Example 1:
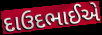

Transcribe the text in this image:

દાઉદભાઈએ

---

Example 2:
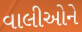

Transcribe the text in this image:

વાલીઓને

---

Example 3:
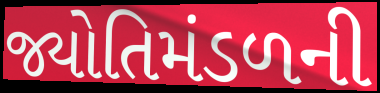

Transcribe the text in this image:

જ્યોતિમંડળની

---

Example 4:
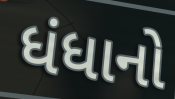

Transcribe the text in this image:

ધંધાનો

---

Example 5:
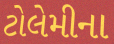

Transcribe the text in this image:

ટોલેમીના